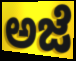
ಅಜೆ